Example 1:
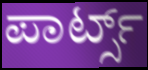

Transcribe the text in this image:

ಪಾರ್ಟ್ಸ್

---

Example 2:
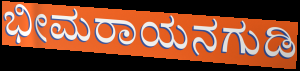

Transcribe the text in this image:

ಭೀಮರಾಯನಗುಡಿ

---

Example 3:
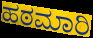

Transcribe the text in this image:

ಹಠಮಾರಿ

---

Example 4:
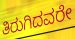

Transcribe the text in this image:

ತಿರುಗಿದವರೇ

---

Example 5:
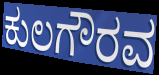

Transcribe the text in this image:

ಕುಲಗೌರವ